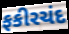
ફકીરચંદ